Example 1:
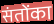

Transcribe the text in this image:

संतोंका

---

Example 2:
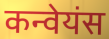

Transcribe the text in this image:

कन्वेयंस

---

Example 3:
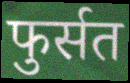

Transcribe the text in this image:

फुर्सत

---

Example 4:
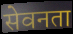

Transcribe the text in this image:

सेवनता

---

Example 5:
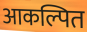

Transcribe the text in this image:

आकल्पित